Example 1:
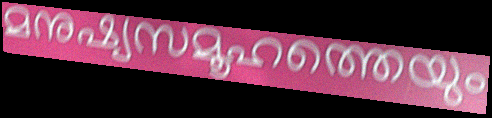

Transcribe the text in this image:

മനുഷ്യസമൂഹത്തെയും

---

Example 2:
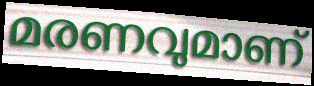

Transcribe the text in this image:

മരണവുമാണ്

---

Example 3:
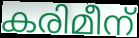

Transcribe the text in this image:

കരിമീന്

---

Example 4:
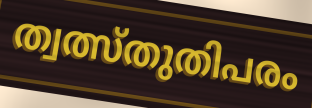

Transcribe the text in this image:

ത്വത്സ്തുതിപരം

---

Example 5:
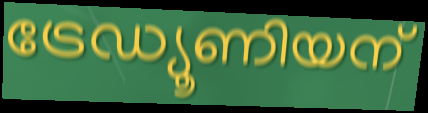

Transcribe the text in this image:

ട്രേഡ്യൂണിയന്